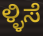
ಳ್ಳಿಸೆ